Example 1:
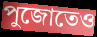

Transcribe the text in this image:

পুজোতেও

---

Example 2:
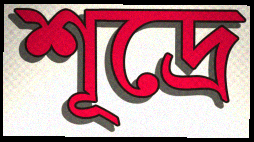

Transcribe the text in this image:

শূদ্রে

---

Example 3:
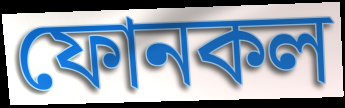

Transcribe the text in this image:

ফোনকল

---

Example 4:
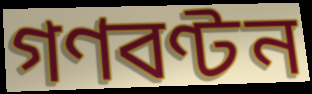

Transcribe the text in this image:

গণবণ্টন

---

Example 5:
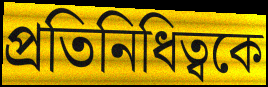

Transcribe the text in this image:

প্রতিনিধিত্বকে